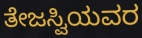
ತೇಜಸ್ವಿಯವರ